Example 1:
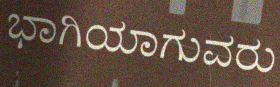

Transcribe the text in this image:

ಭಾಗಿಯಾಗುವರು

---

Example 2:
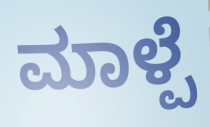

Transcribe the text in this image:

ಮಾಳ್ಪೆ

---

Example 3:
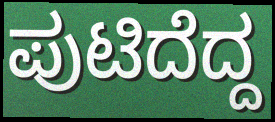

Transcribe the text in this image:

ಪುಟಿದೆದ್ದ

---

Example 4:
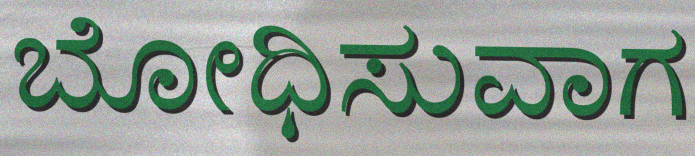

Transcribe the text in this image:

ಬೋಧಿಸುವಾಗ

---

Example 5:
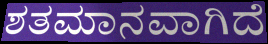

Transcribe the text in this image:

ಶತಮಾನವಾಗಿದೆ